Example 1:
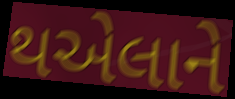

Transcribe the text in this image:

થએલાને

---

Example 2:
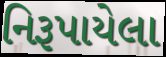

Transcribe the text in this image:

નિરૂપાયેલા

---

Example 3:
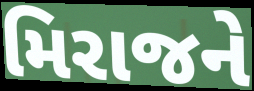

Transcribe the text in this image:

મિરાજને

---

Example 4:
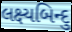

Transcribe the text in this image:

લક્ષ્યબિન્દુ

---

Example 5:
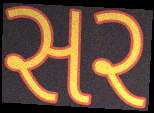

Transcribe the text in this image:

સર